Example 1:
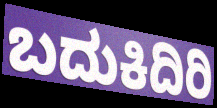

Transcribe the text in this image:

ಬದುಕಿದಿರಿ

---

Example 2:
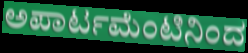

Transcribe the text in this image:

ಅಪಾರ್ಟಮೆಂಟಿನಿಂದ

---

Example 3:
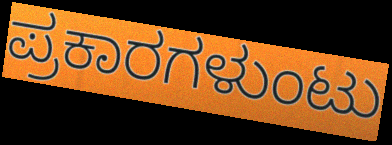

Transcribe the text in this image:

ಪ್ರಕಾರಗಳುಂಟು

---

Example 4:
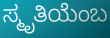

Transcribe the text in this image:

ಸ್ಮೃತಿಯೆಂಬ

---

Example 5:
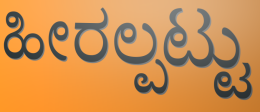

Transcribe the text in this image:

ಹೀರಲ್ಪಟ್ಟು